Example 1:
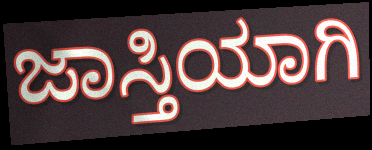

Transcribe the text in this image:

ಜಾಸ್ತಿಯಾಗಿ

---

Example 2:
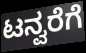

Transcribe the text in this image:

ಟನ್ವರೆಗೆ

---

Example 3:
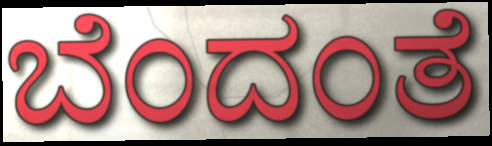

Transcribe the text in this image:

ಬೆಂದಂತೆ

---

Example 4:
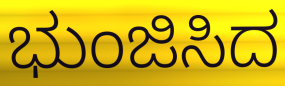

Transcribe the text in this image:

ಭುಂಜಿಸಿದ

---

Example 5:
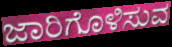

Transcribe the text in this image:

ಜಾರಿಗೊಳಿಸುವ